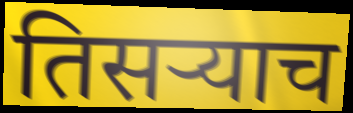
तिसर्‍याच